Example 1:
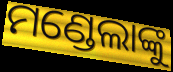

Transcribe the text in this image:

ମଣ୍ଡେଲାଙ୍କୁ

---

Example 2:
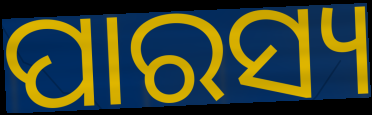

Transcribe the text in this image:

ପାରସ୍ୟ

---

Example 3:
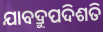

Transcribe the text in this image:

ଯାବଦ୍ରୁପଦିଶତି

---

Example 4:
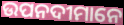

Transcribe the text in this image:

ଉପନଦୀମାନେ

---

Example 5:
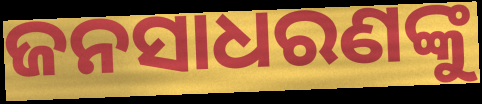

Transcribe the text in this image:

ଜନସାଧରଣଙ୍କୁ